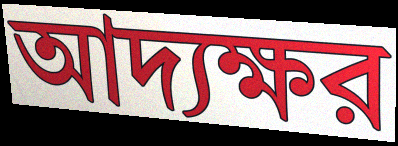
আদ্যক্ষর